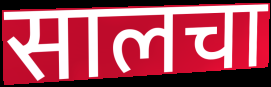
सालचा